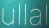
ullal